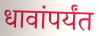
धावांपर्यंत